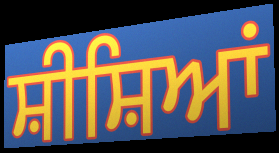
ਸ਼ੀਸ਼ਿਆਂ